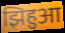
झिहुआ